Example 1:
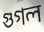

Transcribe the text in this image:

গুগল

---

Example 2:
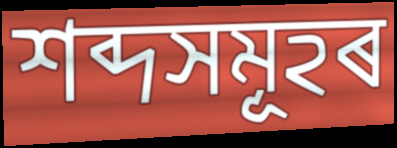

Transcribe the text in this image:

শব্দসমূহৰ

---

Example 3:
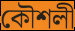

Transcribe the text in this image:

কৌশলী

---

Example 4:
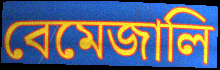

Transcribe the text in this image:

বেমেজালি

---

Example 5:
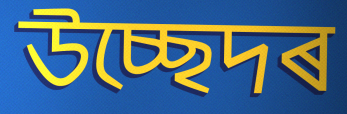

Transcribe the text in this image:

উচ্ছেদৰ